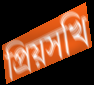
প্রিয়সখি